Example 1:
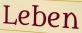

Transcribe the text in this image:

Leben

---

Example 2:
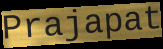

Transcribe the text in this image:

Prajapat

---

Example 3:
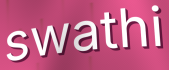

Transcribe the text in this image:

swathi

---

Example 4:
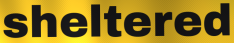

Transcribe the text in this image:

sheltered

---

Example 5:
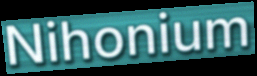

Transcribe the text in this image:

Nihonium